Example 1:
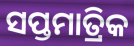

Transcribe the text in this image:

ସପ୍ତମାତ୍ରିକ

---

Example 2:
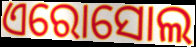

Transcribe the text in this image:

ଏରୋସୋଲ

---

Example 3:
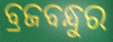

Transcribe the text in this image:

ବ୍ରଜବନ୍ଧୁର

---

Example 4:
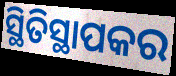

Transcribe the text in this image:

ସ୍ଥିତିସ୍ଥାପକର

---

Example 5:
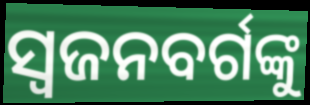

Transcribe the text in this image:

ସ୍ୱଜନବର୍ଗଙ୍କୁ